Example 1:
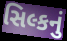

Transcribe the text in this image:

સિલ્કનું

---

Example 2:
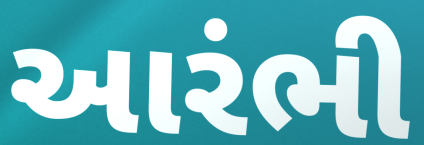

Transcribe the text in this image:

આરંભી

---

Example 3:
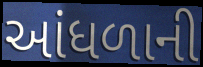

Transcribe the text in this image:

આંધળાની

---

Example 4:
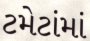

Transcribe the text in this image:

ટમેટાંમાં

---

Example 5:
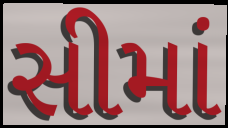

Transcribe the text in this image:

સીમાં